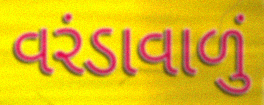
વરંડાવાળું